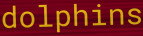
dolphins